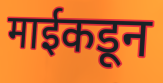
माईकडून